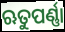
ଋତୁପର୍ଣ୍ଣା